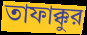
তাফাক্কুর